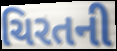
ચિરતની